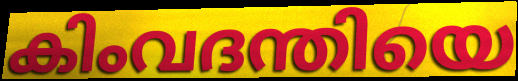
കിംവദന്തിയെ